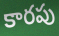
కారపు